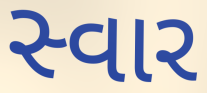
સ્વાર